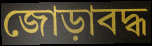
জোড়াবদ্ধ